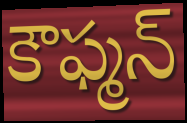
కౌఫ్మన్